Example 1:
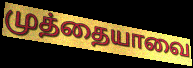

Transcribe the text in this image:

முத்தையாவை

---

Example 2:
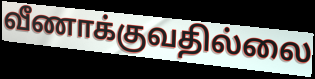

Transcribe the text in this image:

வீணாக்குவதில்லை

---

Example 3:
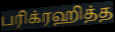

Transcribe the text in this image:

பரிக்ரஹித்த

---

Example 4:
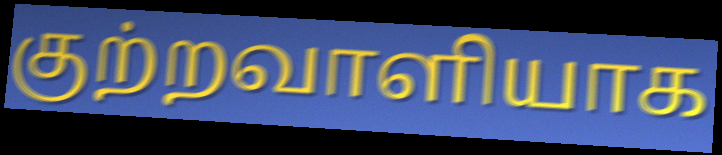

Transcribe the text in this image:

குற்றவாளியாக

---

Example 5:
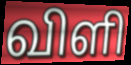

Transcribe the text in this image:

விளி